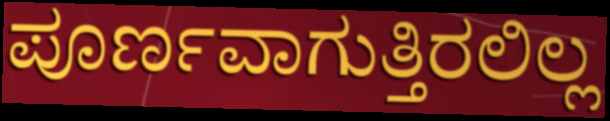
ಪೂರ್ಣವಾಗುತ್ತಿರಲಿಲ್ಲ